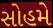
સોહમે